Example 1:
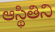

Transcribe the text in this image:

ఆస్థితిని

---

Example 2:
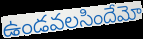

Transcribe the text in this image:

ఉండవలసిందేమో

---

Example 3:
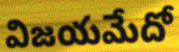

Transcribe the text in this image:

విజయమేదో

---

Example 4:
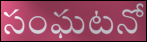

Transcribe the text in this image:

సంఘటనో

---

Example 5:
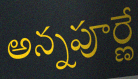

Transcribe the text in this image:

అన్నపూర్ణే